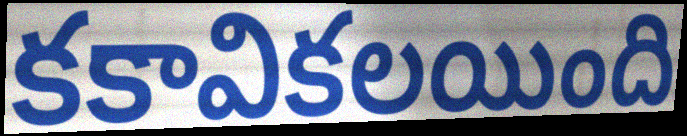
కకావికలయింది